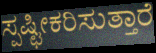
ಸ್ಪಷ್ಟೀಕರಿಸುತ್ತಾರೆ